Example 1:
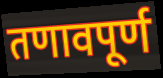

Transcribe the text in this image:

तणावपूर्ण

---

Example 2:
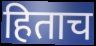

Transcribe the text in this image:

हिताच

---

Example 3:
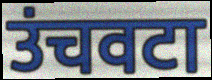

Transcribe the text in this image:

उंचवटा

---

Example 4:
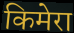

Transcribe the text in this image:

किमेरा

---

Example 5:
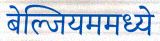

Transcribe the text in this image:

बेल्जियममध्ये